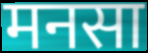
मनसा